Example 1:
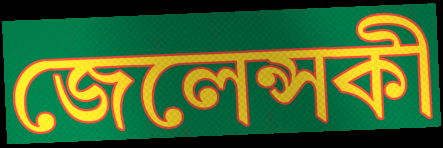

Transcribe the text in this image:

জেলেন্সকী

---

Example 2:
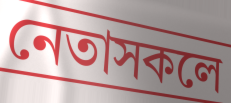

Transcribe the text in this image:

নেতাসকলে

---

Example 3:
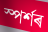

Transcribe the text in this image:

স্পৰ্শৰ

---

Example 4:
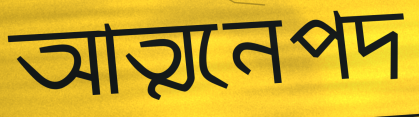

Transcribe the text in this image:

আত্মনেপদ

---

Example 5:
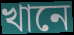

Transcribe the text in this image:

খানে